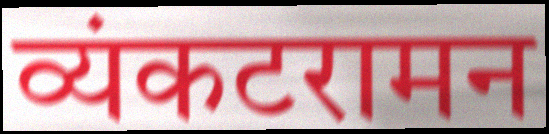
व्यंकटरामन